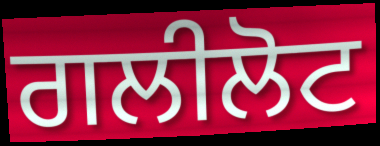
ਗਲੀਲੋਟ